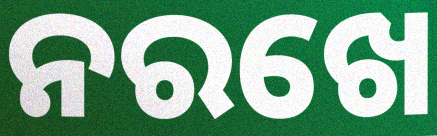
ନରଖେ